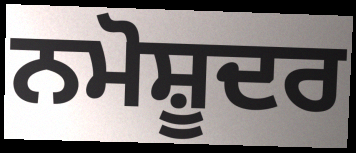
ਨਮੋਸ਼ੂਦਰ